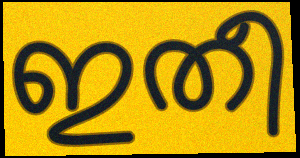
ഇതീ